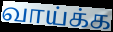
வாய்க்க